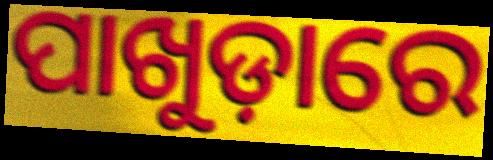
ପାଖୁଡ଼ାରେ